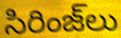
సిరింజ్‌లు